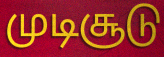
முடிசூடு